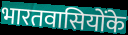
भारतवासियोंके